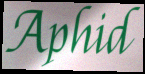
Aphid